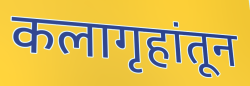
कलागृहांतून